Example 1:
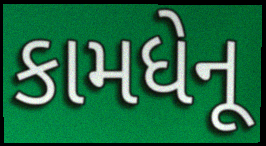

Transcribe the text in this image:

કામધેનૂ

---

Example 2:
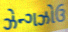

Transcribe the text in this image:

ઝેન્ગઝોઉ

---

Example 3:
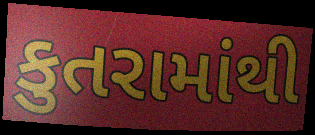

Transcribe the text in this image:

કુતરામાંથી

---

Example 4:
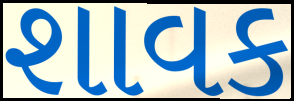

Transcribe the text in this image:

શાવક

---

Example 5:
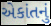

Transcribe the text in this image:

એકાંતનું